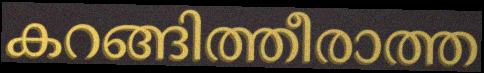
കറങ്ങിത്തീരാത്ത